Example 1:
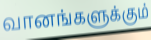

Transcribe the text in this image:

வானங்களுக்கும்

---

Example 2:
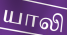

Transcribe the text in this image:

யாலி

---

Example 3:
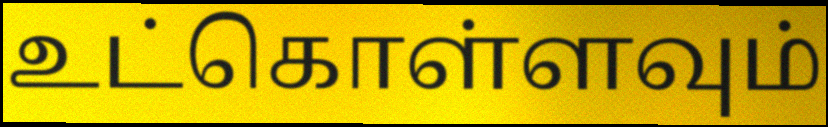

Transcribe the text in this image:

உட்கொள்ளவும்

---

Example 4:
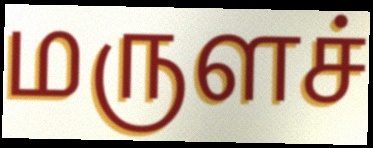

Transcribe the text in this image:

மருளச்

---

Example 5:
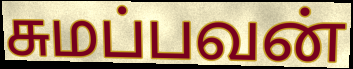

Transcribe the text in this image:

சுமப்பவன்